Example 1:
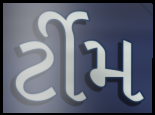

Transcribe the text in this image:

ર્ટીમ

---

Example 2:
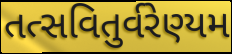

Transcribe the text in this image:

તત્સવિતુર્વરેણ્યમ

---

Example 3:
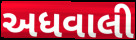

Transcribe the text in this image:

અધવાલી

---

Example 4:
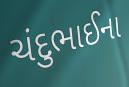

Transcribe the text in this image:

ચંદુભાઈના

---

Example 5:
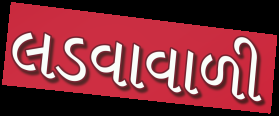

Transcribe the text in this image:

લડવાવાળી